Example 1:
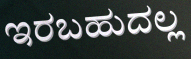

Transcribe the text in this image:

ಇರಬಹುದಲ್ಲ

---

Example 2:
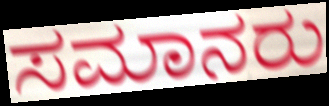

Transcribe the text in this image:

ಸಮಾನರು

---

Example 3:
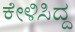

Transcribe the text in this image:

ಕೇಳಿಸಿದ್ದ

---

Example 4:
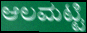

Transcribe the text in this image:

ಆಲಮಟ್ಟಿ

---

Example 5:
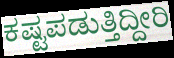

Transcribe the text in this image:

ಕಷ್ಟಪಡುತ್ತಿದ್ದೀರಿ